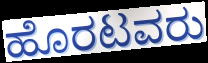
ಹೊರಟವರು